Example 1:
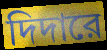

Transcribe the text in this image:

দিদারে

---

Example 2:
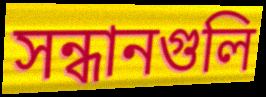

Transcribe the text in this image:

সন্ধানগুলি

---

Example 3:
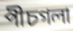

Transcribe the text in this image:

পীচগলা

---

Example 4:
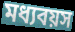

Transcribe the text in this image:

মধ্যবয়স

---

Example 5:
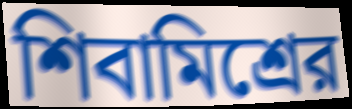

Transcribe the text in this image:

শিবামিশ্রের